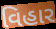
વિહાર